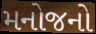
મનોજનો